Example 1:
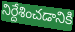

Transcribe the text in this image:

నిర్దేశించడానికి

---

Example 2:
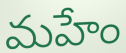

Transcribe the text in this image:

మహేం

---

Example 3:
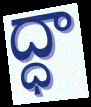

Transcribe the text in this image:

ద్ధా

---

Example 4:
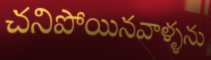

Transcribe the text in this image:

చనిపోయినవాళ్ళను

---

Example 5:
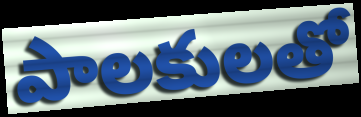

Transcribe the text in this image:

పాలకులతో